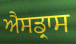
ਐਸਡ੍ਰਾਸ